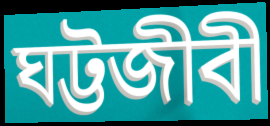
ঘট্টজীবী